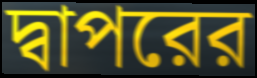
দ্বাপরের